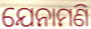
ଯେନାମଣି